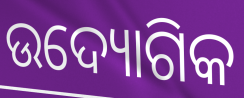
ଉଦ୍ୟୋଗିକ